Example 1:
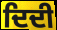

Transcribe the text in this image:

ਦਿਦੀ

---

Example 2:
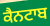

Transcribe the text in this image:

ਕੈਨਟਾਬ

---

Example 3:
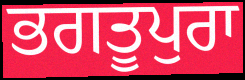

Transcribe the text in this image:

ਭਗਤੂਪੁਰਾ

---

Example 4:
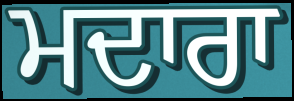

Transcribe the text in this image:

ਮਦਾਰਾ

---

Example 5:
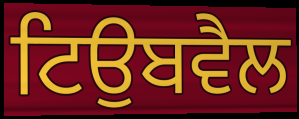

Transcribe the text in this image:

ਟਿਉਬਵੈਲ